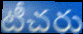
టీచరు